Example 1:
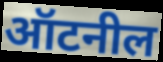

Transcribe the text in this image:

ऑटनील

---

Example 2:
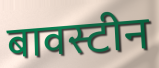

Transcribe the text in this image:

बावस्टीन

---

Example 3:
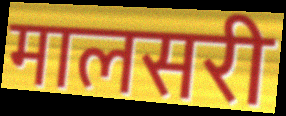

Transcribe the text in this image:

मालसरी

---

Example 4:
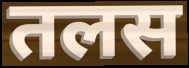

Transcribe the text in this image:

तलस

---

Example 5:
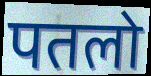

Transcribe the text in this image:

पतलो